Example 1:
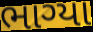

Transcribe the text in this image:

ભાગ્યા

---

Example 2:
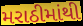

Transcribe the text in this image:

મરાઠીમાંથી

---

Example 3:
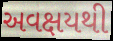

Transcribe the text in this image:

અવક્ષયથી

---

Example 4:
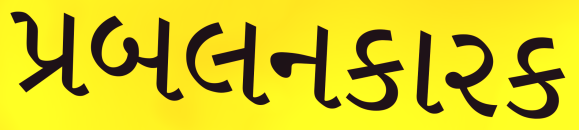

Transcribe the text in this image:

પ્રબલનકારક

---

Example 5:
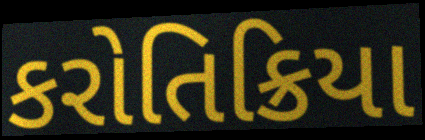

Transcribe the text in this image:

કરોતિક્રિયા